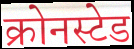
क्रोनस्टेड